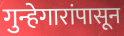
गुन्हेगारांपासून